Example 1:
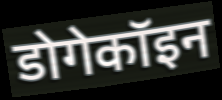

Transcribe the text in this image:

डोगेकॉइन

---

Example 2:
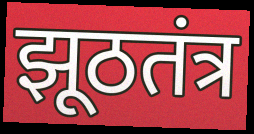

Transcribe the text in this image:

झूठतंत्र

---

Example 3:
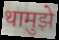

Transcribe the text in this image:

थामुझे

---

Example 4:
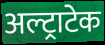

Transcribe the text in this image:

अल्‍ट्राटेक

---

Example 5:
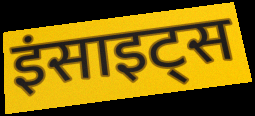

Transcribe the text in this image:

इंसाइट्स